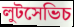
লুটসেভিচ